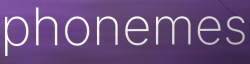
phonemes